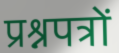
प्रश्नपत्रों